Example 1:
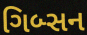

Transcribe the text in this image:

ગિબ્સન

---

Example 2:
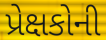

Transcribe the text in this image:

પ્રેક્ષકોની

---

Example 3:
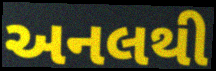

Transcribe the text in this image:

અનલથી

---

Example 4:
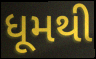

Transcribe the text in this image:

ધૂમથી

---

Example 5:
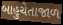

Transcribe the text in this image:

બાહુચેતાજાળ